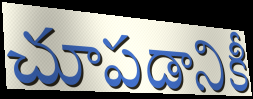
చూపడానికీ